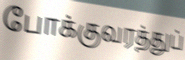
போக்குவரத்துப்